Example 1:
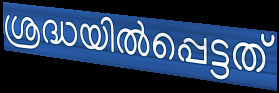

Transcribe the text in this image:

ശ്രദ്ധയിൽപ്പെട്ടത്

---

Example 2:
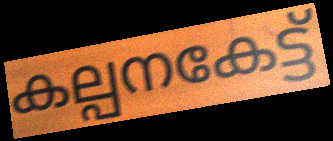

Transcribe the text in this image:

കല്പനകേട്ട്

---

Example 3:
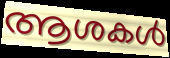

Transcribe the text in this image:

ആശകൾ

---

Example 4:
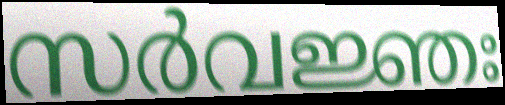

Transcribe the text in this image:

സർവജ്ഞഃ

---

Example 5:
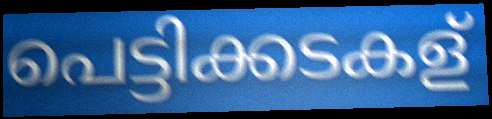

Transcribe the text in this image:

പെട്ടിക്കടകള്